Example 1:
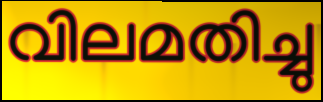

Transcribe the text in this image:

വിലമതിച്ചു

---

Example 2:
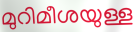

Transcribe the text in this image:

മുറിമീശയുള്ള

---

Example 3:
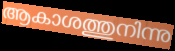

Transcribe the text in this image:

ആകാശത്തുനിന്നു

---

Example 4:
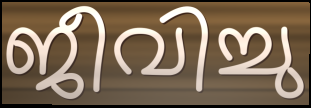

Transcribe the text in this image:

ജീവിച്ചു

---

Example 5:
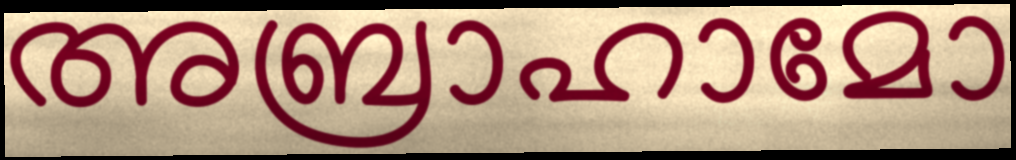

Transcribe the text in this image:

അബ്രാഹാമോ